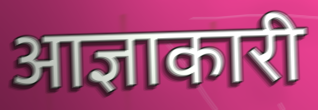
आज्ञाकारी